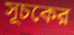
সূচকের